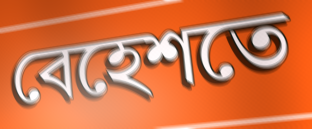
বেহেশতে